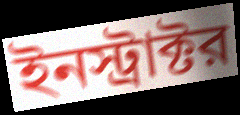
ইনস্ট্রাক্টর